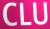
CLU